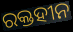
ରକ୍ତହୀନ